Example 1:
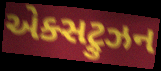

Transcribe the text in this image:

એક્સટ્રુઝન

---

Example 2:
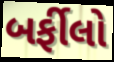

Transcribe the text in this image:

બર્ફીલો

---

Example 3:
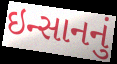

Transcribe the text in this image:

ઇન્સાનનું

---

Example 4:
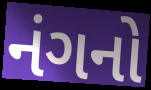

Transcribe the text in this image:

નંગનો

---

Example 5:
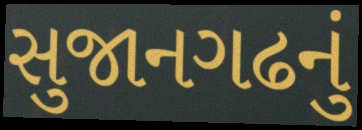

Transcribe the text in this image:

સુજાનગઢનું